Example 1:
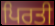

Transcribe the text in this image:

ਪਿਰਤੀ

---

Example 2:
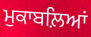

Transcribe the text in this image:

ਮੁਕਾਬਲ਼ਿਆਂ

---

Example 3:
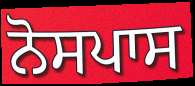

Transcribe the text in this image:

ਨੋਸਪਾਸ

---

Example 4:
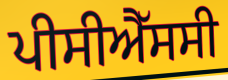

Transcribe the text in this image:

ਪੀਸੀਐੱਸਸੀ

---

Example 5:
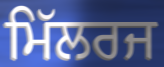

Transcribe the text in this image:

ਮਿੱਲਰਜ